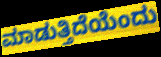
ಮಾಡುತ್ತಿದೆಯೆಂದು